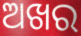
ଅଖର